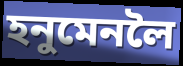
হনুমেনলৈ